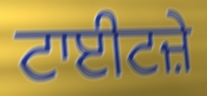
ਟਾਈਟਜ਼ੇ